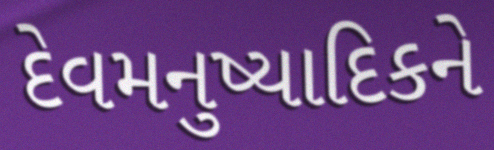
દેવમનુષ્યાદિકને